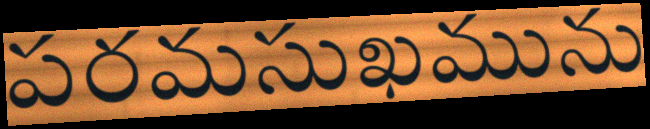
పరమసుఖమును